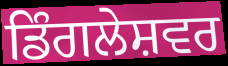
ਡਿੰਗਲੇਸ਼ਵਰ